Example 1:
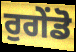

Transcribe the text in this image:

ਰੁਗੇਂਡੋ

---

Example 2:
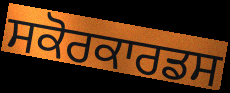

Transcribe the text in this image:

ਸਕੋਰਕਾਰਡਸ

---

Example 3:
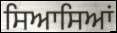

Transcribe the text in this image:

ਸਿਆਸਿਆਂ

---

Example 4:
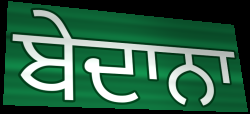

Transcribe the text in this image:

ਬੇਦਾਨਾ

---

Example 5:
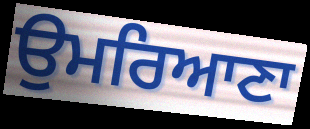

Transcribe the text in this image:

ਉਮਰਿਆਣਾ